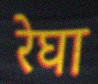
रेघा